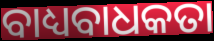
ବାଧ୍ୟବାଧକତା